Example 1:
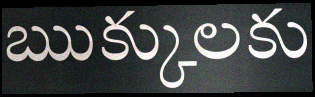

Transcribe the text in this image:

ఋక్కులకు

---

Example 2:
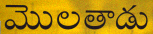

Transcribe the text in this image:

మొలతాడు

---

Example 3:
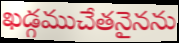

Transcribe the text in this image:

ఖడ్గముచేతనైనను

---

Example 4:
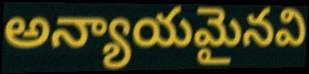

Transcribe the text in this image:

అన్యాయమైనవి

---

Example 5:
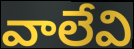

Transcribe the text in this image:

వాలేవి